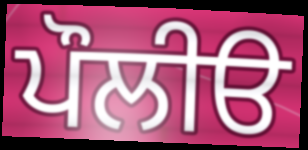
ਪੌਲੀੳ